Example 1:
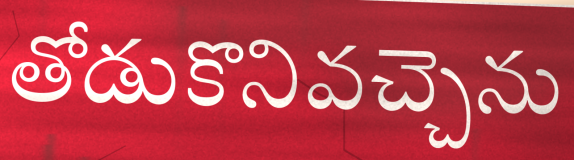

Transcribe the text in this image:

తోడుకొనివచ్చెను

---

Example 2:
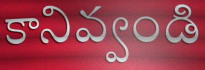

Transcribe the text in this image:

కానివ్వండి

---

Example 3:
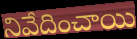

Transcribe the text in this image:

నివేదించాయి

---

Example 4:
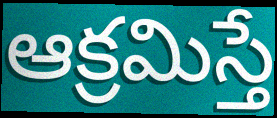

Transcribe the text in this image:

ఆక్రమిస్తే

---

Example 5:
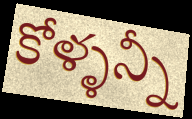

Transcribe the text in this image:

కోళ్ళన్నీ